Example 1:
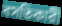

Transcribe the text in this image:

বসতিকারী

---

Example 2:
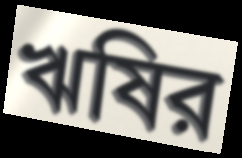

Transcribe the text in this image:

ঋষির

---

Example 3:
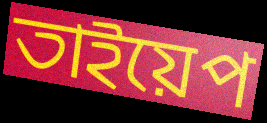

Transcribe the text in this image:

তাইয়েপ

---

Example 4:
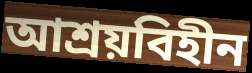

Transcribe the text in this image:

আশ্রয়বিহীন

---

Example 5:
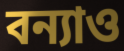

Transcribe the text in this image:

বন্যাও